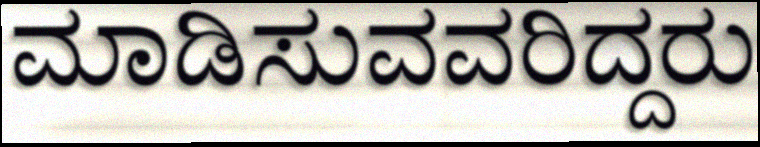
ಮಾಡಿಸುವವರಿದ್ದರು